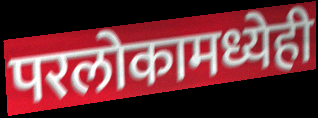
परलोकामध्येही